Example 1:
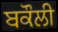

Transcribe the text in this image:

ਬਕੌਲੀ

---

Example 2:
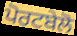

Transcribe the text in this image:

ਪੋਰਟਬੇਲੋ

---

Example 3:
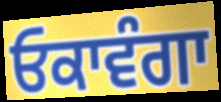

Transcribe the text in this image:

ਓਕਾਵੰਗਾ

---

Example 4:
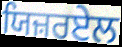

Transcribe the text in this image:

ਯਿਜ਼ਰਏਲ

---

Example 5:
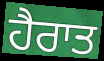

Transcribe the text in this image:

ਹੈਰਾਤ